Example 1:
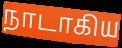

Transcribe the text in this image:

நாடாகிய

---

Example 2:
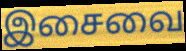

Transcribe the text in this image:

இசைவை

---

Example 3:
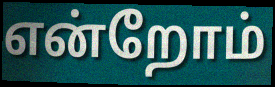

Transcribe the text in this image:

என்றோம்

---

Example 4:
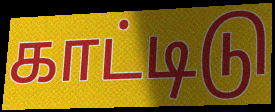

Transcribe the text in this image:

காட்டிடு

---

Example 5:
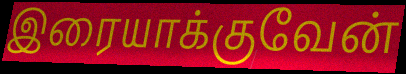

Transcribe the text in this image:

இரையாக்குவேன்